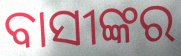
ବାସୀଙ୍କର